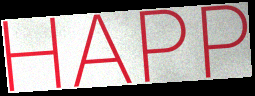
HAPP